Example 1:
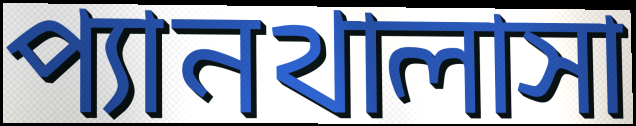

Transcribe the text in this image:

প্যানথালাসা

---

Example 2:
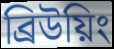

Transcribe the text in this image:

ব্রিউয়িং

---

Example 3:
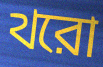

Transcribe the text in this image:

থরো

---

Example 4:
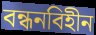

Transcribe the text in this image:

বন্ধনবিহীন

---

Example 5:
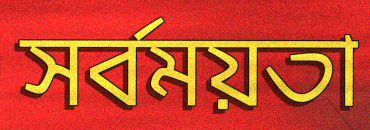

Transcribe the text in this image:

সর্বময়তা